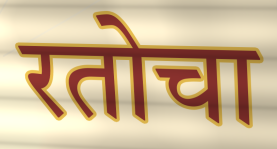
रतोचा